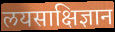
लयसाक्षिज्ञान